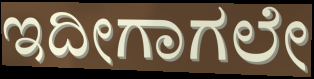
ಇದೀಗಾಗಲೇ